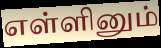
எள்ளினும்